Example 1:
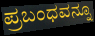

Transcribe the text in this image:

ಪ್ರಬಂಧವನ್ನೂ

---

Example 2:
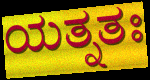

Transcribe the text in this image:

ಯತ್ನತಃ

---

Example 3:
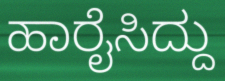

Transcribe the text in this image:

ಹಾರೈಸಿದ್ದು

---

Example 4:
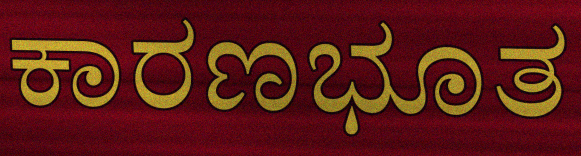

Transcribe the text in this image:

ಕಾರಣಭೂತ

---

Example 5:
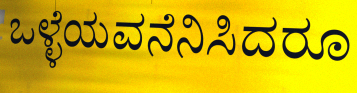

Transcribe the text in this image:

ಒಳ್ಳೆಯವನೆನಿಸಿದರೂ